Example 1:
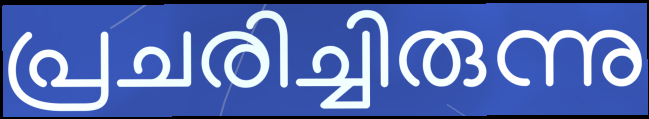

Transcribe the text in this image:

പ്രചരിച്ചിരുന്നു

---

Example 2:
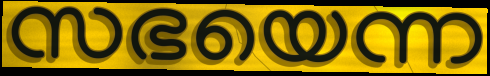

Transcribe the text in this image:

സഭയെന്ന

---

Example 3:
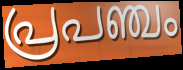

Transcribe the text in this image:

പ്രപഞ്ചം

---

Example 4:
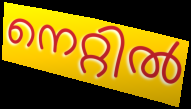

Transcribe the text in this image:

നെറ്റിൽ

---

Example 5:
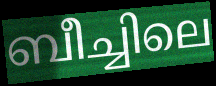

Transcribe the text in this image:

ബീച്ചിലെ